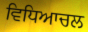
ਵਿਧਿਆਚਲ